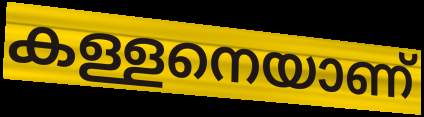
കള്ളനെയാണ്